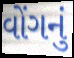
વોંગનું